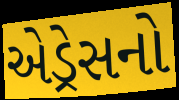
એડ્રેસનો